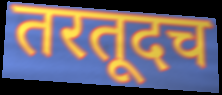
तरतूदच